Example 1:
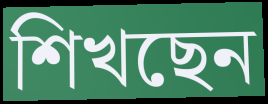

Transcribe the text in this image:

শিখছেন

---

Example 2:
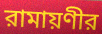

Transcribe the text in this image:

রামায়ণীর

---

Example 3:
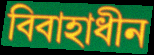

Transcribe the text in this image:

বিবাহাধীন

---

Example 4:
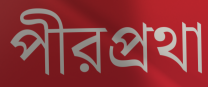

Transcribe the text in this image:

পীরপ্রথা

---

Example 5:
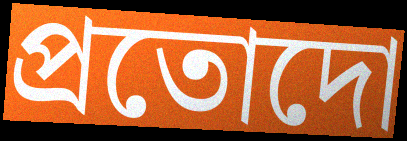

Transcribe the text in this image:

প্রতোদো